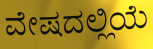
ವೇಷದಲ್ಲಿಯೆ